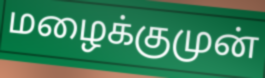
மழைக்குமுன்